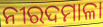
ନୀରଦମାଳା